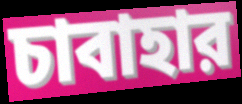
চাবাহার